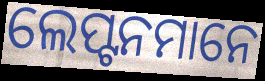
ଲେପ୍ଟନମାନେ